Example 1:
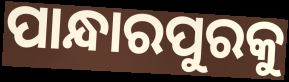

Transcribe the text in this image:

ପାନ୍ଧାରପୁରକୁ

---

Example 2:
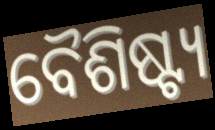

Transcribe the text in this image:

ବୈଶିଷ୍ଟ୍ୟ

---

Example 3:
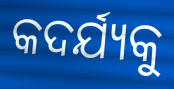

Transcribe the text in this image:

କଦର୍ଯ୍ୟକୁ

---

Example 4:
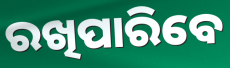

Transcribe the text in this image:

ରଖିପାରିବେ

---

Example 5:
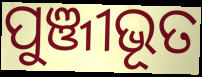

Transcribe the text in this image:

ପୁଞ୍ଜୀଭୂତ